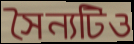
সৈন্যটিও